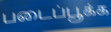
படைப்பூக்க